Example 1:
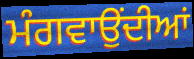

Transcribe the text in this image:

ਮੰਗਵਾਉਂਦੀਆਂ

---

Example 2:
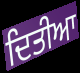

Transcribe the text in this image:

ਦਿਤੀਆ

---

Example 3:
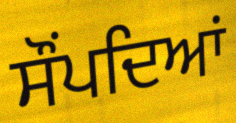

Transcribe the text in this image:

ਸੌਂਪਦਿਆਂ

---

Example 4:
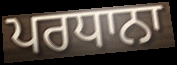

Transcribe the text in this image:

ਪਰਧਾਨਾ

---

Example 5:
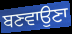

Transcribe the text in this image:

ਬਣਵਾਉਣਾ